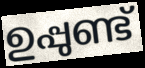
ഉപ്പുണ്ട്